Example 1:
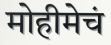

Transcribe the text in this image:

मोहीमेचं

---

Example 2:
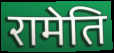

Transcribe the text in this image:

रामेति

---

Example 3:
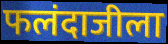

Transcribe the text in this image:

फलंदाजीला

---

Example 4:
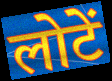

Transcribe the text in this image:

लोटें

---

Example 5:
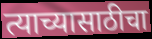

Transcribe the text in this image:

त्याच्यासाठीचा